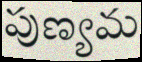
పుణ్యమ